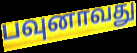
பவுனாவது